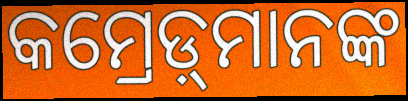
କମ୍ରେଡ଼୍‌ମାନଙ୍କ